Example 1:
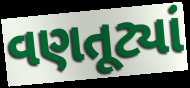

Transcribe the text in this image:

વણતૂટ્યાં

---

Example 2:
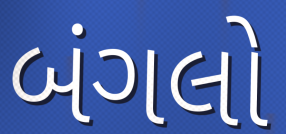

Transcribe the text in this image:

બંગલો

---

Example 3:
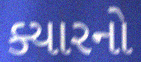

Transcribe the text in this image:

ક્યારનો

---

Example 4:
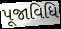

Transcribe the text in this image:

પૂજાવિધિ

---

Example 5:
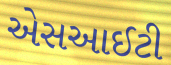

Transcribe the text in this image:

એસઆઈટી